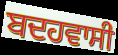
ਬਦਹਵਾਸੀ